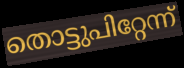
തൊട്ടുപിറ്റേന്ന്